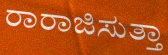
ರಾರಾಜಿಸುತ್ತಾ